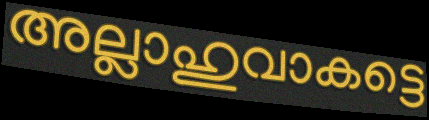
അല്ലാഹുവാകട്ടെ